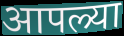
आपल्या